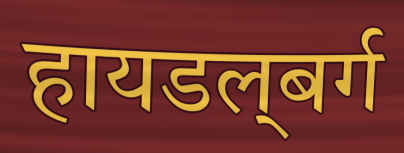
हायडल्‌बर्ग